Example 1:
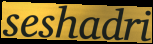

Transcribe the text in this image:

seshadri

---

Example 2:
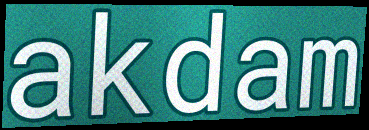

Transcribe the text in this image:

akdam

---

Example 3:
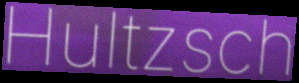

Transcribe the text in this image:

Hultzsch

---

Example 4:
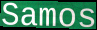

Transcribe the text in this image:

Samos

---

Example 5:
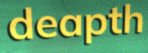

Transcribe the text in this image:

deapth